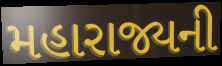
મહારાજ્યની